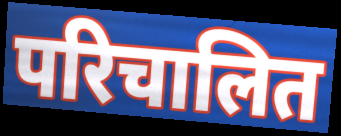
परिचालित